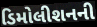
ડિમોલીશનની